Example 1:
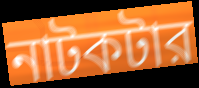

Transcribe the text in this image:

নাটকটার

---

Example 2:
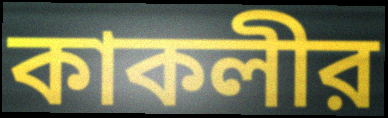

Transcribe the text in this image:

কাকলীর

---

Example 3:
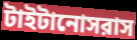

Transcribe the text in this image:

টাইটানোসরাস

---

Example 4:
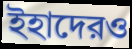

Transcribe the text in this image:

ইহাদেরও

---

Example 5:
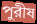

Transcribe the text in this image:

পুরীষ